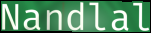
Nandlal